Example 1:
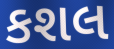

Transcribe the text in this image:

કશલ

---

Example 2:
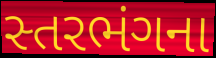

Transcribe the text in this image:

સ્તરભંગના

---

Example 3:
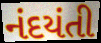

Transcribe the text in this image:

નંદયંતી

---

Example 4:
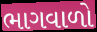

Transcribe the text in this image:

ભાગવાળો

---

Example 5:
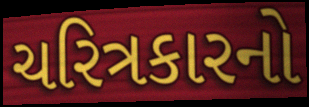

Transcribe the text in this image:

ચરિત્રકારનો